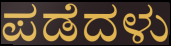
ಪಡೆದಳು